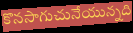
కొనసాగుచునేయున్నది